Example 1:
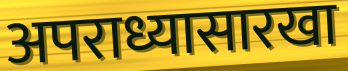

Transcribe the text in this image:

अपराध्यासारखा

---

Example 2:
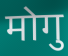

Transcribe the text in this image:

मोगु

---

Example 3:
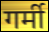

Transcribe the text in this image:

गर्मी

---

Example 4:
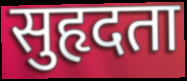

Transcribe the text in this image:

सुहृदता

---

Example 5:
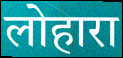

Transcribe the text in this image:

लोहारा